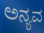
ಅನ್ಯವ